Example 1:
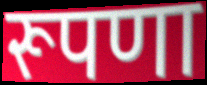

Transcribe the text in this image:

रूपणा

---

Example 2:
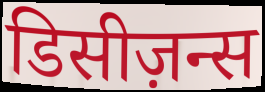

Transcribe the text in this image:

डिसीज़न्स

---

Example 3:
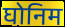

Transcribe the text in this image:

घोनिम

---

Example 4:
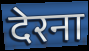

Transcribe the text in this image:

देरना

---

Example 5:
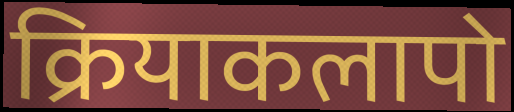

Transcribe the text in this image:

क्रियाकलापो